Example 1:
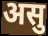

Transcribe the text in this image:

असु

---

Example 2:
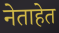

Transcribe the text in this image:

नेताहेत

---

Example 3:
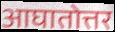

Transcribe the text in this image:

आघातोत्तर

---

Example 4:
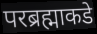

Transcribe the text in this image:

परब्रह्माकडे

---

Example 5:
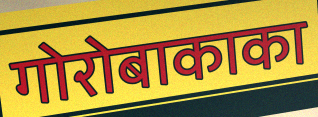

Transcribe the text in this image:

गोरोबाकाका